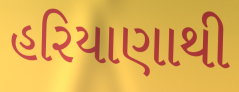
હરિયાણાથી